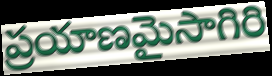
ప్రయాణమైసాగిరి